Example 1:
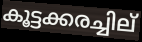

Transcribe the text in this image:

കൂട്ടക്കരച്ചില്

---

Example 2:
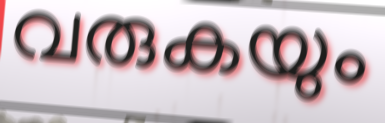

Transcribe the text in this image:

വരുകയും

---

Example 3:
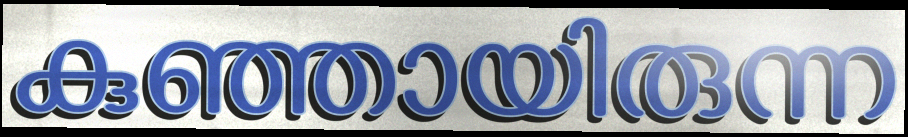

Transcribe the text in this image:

കുഞ്ഞായിരുന്ന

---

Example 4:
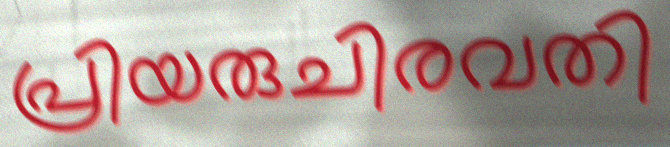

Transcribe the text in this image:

പ്രിയരുചിരവതി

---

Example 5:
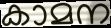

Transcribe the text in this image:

കാമന